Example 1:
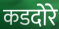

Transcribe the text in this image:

कडदोरे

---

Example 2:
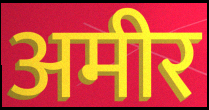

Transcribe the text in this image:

अमीर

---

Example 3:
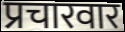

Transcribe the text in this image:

प्रचारवार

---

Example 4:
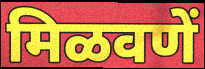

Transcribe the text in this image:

मिळवणें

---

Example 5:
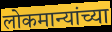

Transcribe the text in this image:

लोकमान्यांच्या